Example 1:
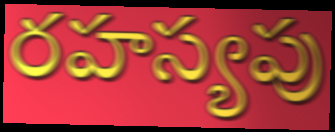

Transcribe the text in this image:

రహస్యపు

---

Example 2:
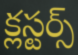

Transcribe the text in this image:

క్లస్టర్స్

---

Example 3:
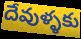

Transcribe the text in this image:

దేవుళ్ళకు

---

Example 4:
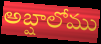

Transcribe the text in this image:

అబ్షాలోము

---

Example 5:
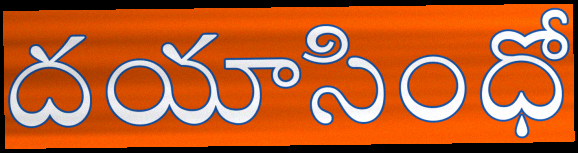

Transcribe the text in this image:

దయాసింధో